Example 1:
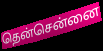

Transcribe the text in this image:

தென்சென்னை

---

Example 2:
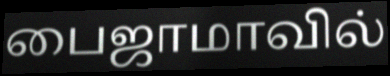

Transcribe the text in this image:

பைஜாமாவில்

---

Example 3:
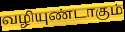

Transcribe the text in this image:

வழியுண்டாகும்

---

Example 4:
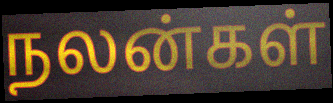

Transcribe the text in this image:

நலன்கள்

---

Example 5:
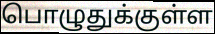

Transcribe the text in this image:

பொழுதுக்குள்ள